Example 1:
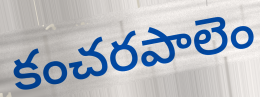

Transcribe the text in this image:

కంచరపాలెం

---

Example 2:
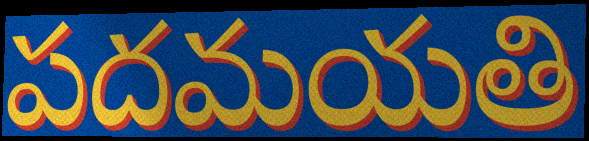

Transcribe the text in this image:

పదమయతి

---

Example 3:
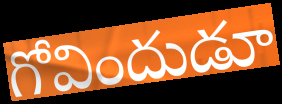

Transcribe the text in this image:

గోవిందుడూ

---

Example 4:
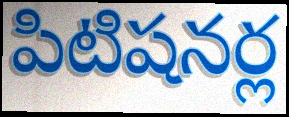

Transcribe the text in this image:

పిటిషనర్ల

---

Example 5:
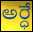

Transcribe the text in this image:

అర్ధే